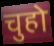
चुहो